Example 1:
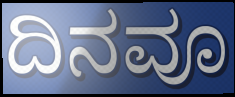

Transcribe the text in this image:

ದಿನವೂ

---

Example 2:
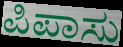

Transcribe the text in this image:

ಪಿಪಾಸು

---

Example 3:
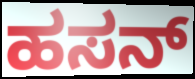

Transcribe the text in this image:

ಹಸನ್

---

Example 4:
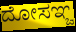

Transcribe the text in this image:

ದೋಸಞ್ಚ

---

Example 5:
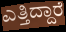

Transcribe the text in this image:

ಎತ್ತಿದ್ದಾರೆ